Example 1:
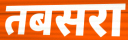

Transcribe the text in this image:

तबसरा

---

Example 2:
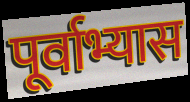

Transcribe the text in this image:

पूर्वाभ्यास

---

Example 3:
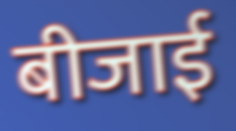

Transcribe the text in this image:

बीजाई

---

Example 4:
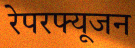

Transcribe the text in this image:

रेपरफ्यूजन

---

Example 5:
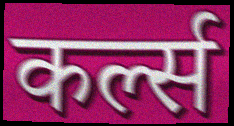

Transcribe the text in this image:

कर्ल्स